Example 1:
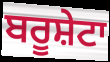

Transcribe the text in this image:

ਬਰੂਸ਼ੇਟਾ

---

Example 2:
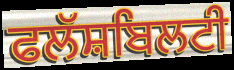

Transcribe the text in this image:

ਫਲੱਸ਼ਬਿਲਟੀ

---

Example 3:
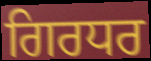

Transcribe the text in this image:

ਗਿਰਧਰ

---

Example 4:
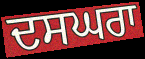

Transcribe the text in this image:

ਦਸਘਰਾ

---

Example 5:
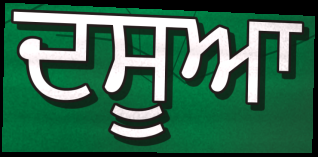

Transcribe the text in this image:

ਦਸੂਆ